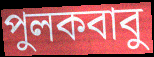
পুলকবাবু